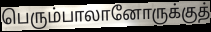
பெரும்பாலானோருக்குத்